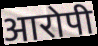
आरोपी